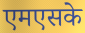
एमएसके